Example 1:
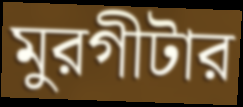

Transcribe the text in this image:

মুরগীটার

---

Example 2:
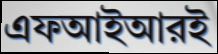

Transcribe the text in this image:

এফআইআরই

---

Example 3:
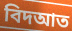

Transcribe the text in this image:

বিদআত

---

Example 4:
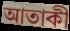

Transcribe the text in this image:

আতাকী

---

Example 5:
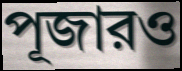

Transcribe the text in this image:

পূজারও